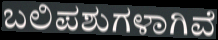
ಬಲಿಪಶುಗಳಾಗಿವೆ